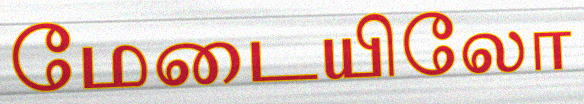
மேடையிலோ